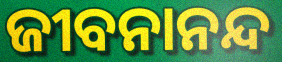
ଜୀବନାନନ୍ଦ